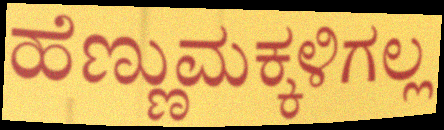
ಹೆಣ್ಣುಮಕ್ಕಳಿಗಲ್ಲ